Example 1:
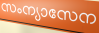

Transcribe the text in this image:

സംന്യാസേന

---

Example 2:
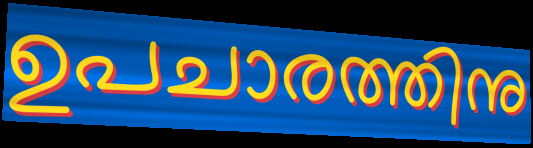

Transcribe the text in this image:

ഉപചാരത്തിനു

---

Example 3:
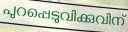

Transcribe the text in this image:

പുറപ്പെടുവിക്കുവിന്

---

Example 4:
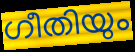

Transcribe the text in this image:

ഗീതിയും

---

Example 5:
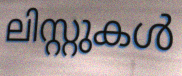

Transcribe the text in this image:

ലിസ്റ്റുകൾ